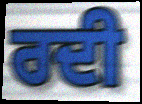
ਰਦੀ